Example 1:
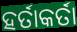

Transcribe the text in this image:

ହର୍ତାକର୍ତା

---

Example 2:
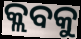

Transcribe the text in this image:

କ୍ଲବକୁ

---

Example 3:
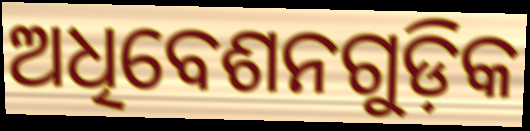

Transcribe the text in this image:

ଅଧିବେଶନଗୁଡ଼ିକ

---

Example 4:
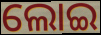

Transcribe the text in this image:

ଲୋଇ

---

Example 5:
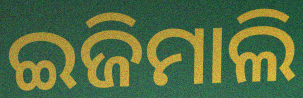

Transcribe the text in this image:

ଇଜିମାଲି